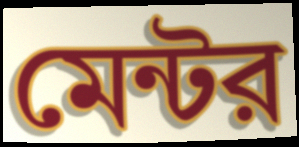
মেন্টর